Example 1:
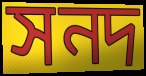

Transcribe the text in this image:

সনদ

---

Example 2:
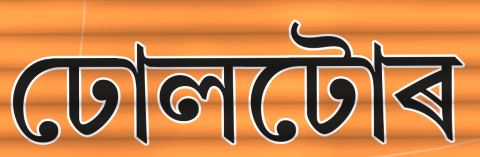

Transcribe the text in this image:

ঢোলটোৰ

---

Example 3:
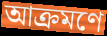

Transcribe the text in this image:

আক্ৰমণে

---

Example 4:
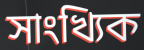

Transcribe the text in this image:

সাংখ্যিক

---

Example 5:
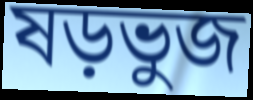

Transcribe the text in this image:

ষড়ভুজ